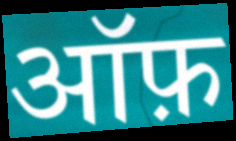
ऑफ़